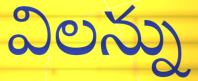
విలన్ను